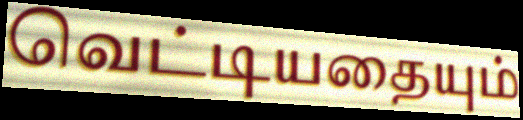
வெட்டியதையும்